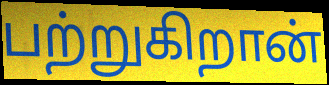
பற்றுகிறான்